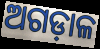
ଅଗଡ଼ାଳ